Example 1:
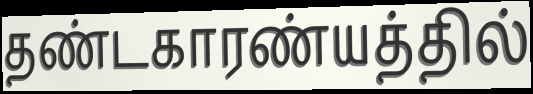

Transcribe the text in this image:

தண்டகாரண்யத்தில்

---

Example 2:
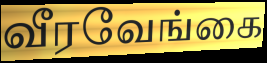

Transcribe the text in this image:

வீரவேங்கை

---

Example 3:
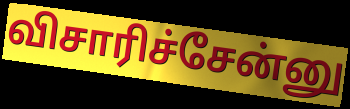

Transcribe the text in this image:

விசாரிச்சேன்னு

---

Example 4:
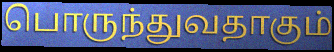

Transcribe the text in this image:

பொருந்துவதாகும்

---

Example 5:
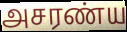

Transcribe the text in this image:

அசரண்ய